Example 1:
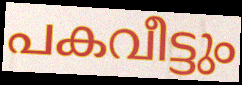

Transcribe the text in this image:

പകവീട്ടും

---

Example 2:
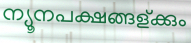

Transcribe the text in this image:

ന്യൂനപക്ഷങ്ങള്ക്കും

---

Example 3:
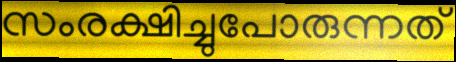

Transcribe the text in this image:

സംരക്ഷിച്ചുപോരുന്നത്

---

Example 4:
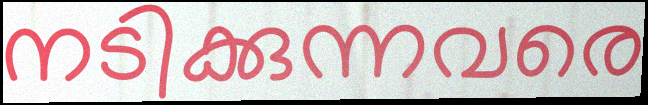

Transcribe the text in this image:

നടിക്കുന്നവരെ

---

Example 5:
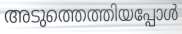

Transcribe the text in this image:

അടുത്തെത്തിയപ്പോൾ